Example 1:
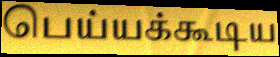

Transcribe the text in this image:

பெய்யக்கூடிய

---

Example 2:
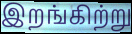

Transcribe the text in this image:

இறங்கிற்று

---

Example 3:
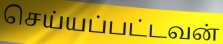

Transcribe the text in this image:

செய்யப்பட்டவன்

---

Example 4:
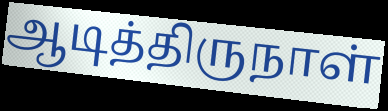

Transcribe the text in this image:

ஆடித்திருநாள்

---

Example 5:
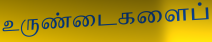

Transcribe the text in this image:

உருண்டைகளைப்